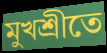
মুখশ্রীতে